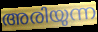
അരിയുന്ന